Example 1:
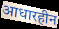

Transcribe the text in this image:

आधारहीन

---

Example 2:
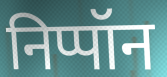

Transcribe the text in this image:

निप्पॉन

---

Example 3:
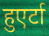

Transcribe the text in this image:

हुएर्टा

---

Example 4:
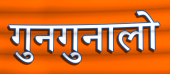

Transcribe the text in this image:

गुनगुनालो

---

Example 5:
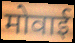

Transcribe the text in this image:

मोवाई